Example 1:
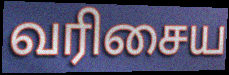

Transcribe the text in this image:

வரிசைய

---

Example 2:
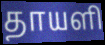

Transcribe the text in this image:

தாயளி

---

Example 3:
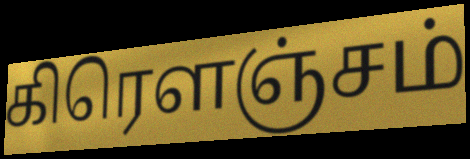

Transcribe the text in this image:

கிரௌஞ்சம்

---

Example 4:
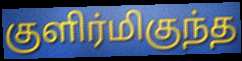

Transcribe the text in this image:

குளிர்மிகுந்த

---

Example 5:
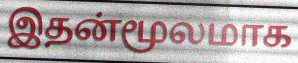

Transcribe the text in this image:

இதன்மூலமாக